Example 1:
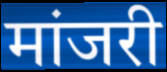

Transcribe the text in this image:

मांजरी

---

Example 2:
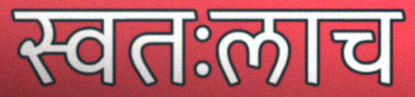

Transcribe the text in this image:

स्वतःलाच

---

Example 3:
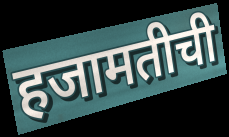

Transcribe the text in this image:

हजामतीची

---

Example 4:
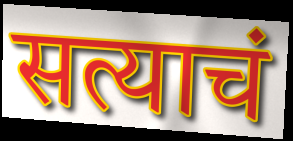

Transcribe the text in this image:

सत्याचं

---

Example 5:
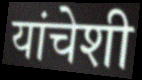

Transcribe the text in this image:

यांचेशी